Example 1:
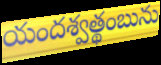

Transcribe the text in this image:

యందశ్వత్థంబును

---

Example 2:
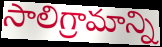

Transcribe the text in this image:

సాలిగ్రామాన్ని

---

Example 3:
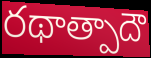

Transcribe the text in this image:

రథాత్పాదౌ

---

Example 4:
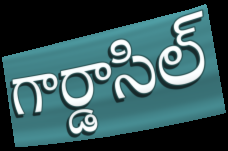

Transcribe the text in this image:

గార్డాసిల్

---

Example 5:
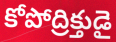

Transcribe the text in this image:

కోపోద్రిక్తుడై